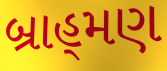
બ્રાહ્‌મણ